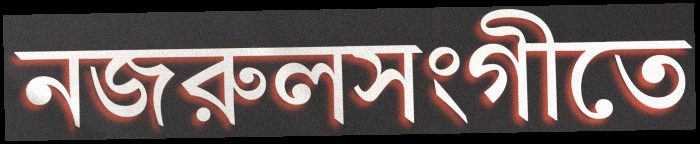
নজরুলসংগীতে